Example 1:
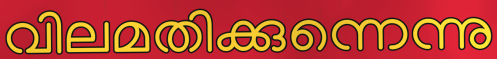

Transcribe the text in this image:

വിലമതിക്കുന്നെന്നു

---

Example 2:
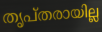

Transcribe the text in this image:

തൃപ്തരായില്ല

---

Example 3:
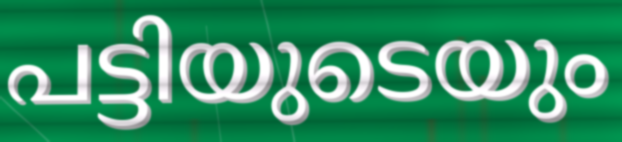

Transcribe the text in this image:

പട്ടിയുടെയും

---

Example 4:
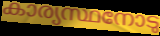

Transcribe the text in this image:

കാര്യസ്ഥനോടു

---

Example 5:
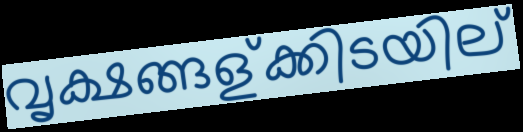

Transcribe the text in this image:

വൃക്ഷങ്ങള്ക്കിടയില്